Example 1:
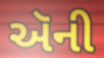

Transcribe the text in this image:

ઍની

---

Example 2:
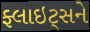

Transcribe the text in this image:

ફ્લાઇટ્સને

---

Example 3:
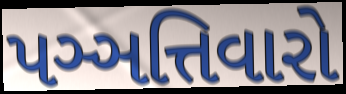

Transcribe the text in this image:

પઞ્ઞત્તિવારો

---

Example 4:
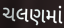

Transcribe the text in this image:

ચલણમાં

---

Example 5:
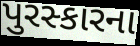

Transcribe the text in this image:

પુરસ્કારના